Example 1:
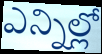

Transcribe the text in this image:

ఎన్నిల్లో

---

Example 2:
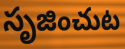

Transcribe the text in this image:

సృజించుట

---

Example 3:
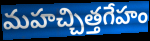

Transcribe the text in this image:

మహచ్చిత్తగేహం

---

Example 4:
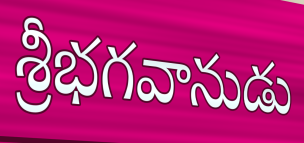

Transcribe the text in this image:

శ్రీభగవానుడు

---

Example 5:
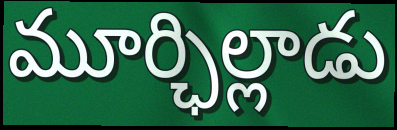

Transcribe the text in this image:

మూర్ఛిల్లాడు